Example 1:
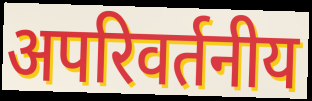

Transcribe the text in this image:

अपरिवर्तनीय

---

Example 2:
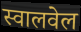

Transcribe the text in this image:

स्वालवेल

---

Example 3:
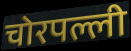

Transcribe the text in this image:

चोरपल्ली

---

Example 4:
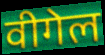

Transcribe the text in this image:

वीगेल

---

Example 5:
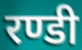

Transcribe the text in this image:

रण्डी